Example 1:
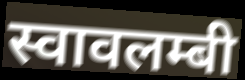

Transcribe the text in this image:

स्वावलम्बी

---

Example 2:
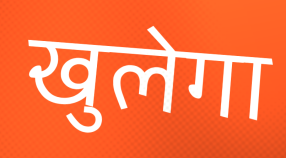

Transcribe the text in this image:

खुलेगा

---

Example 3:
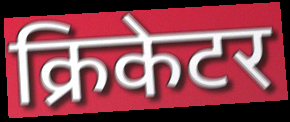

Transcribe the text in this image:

क्रिकेटर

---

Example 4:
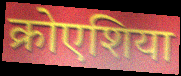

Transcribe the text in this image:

क्रोएशिया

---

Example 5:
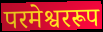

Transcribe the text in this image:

परमेश्वररूप